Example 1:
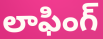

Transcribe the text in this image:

లాఫింగ్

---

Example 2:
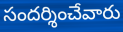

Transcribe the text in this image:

సందర్శించేవారు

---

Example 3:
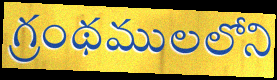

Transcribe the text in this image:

గ్రంథములలోని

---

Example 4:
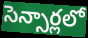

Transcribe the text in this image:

సెన్సార్లలో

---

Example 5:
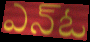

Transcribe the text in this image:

ఎన్ఓ